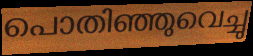
പൊതിഞ്ഞുവെച്ചു